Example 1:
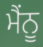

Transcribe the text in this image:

ਮੈਂਨੂ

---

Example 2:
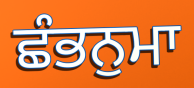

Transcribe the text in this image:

ਛੰਭਨੁਮਾ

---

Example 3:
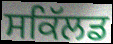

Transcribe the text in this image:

ਸਕਿੱਲਡ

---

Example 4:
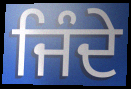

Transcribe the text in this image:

ਜਿੰਦੇ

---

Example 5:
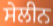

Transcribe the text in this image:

ਸੇਲੀਨ